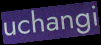
uchangi